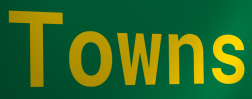
Towns